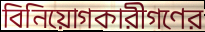
বিনিয়োগকারীগণের